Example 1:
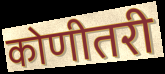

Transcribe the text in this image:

कोणीतरी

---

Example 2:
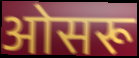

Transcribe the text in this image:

ओसरू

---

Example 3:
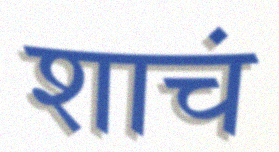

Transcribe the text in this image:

शाचं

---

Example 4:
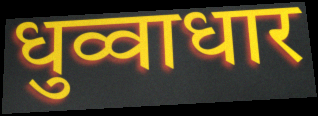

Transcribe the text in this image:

धुव्वाधार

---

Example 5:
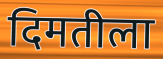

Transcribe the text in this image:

दिमतीला